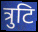
त्रुटि